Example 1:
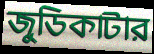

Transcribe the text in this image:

জুডিকাটার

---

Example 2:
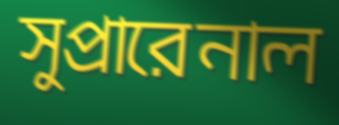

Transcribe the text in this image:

সুপ্রারেনাল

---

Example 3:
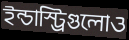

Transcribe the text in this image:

ইন্ডাস্ট্রিগুলোও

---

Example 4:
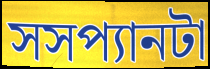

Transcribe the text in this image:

সসপ্যানটা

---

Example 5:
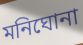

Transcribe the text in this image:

মনিঘোনা